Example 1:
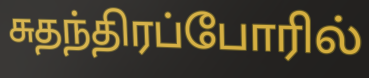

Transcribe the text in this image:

சுதந்திரப்போரில்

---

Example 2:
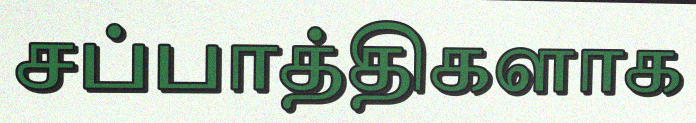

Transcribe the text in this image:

சப்பாத்திகளாக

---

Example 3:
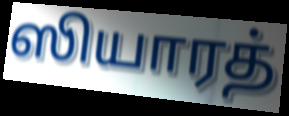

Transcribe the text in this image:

ஸியாரத்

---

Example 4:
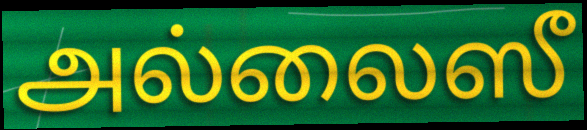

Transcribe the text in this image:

அல்லைஸீ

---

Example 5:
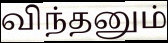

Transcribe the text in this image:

விந்தனும்